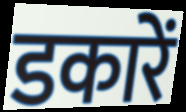
डकारें